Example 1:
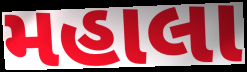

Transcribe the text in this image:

મહાલા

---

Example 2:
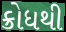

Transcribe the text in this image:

ક્રોધથી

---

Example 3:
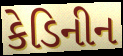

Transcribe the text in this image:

કેડિનીન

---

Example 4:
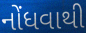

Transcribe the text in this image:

નોંધવાથી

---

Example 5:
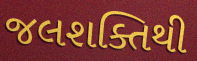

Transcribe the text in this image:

જલશક્તિથી